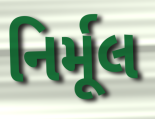
નિર્મૂલ